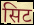
सिट